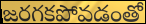
జరగకపోవడంతో